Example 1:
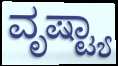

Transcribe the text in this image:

ವೃಷ್ಟ್ಯಾ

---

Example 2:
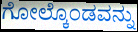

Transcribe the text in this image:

ಗೋಲ್ಕೊಂಡವನ್ನು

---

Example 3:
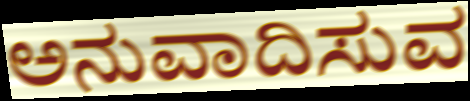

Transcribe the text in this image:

ಅನುವಾದಿಸುವ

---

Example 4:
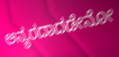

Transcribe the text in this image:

ಅನ್ಯರದಾದಡೇನೋ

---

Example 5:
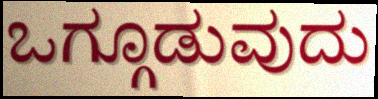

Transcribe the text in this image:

ಒಗ್ಗೂಡುವುದು